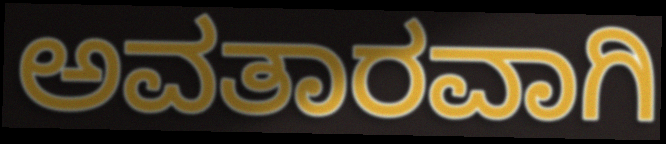
ಅವತಾರವಾಗಿ